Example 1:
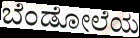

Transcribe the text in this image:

ಬೆಂಡೋಲೆಯ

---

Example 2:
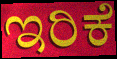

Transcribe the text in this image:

ಇರಿಕೆ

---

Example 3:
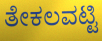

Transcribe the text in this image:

ತೇಕಲವಟ್ಟಿ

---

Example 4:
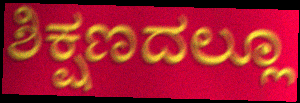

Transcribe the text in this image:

ಶಿಕ್ಷಣದಲ್ಲೂ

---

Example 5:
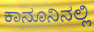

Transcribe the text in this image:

ಕಾನೂನಿನಲ್ಲಿ